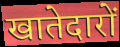
खातेदारों